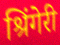
श्रिंगेरी